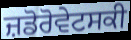
ਜ਼ਡੋਰੋਵੇਟਸਕੀ